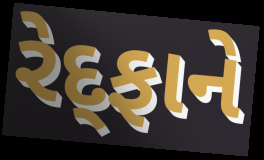
રેદ્ફાને